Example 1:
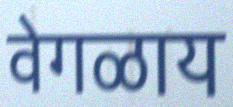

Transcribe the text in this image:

वेगळाय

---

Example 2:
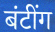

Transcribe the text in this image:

बंटींग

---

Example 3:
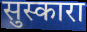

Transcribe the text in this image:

सुस्कारा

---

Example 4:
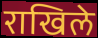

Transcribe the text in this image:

राखिले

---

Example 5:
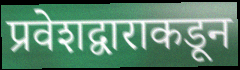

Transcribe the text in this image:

प्रवेशद्वाराकडून